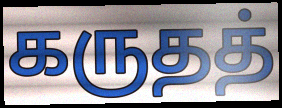
கருதத்